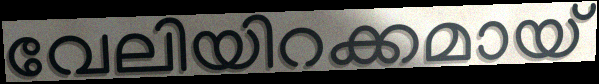
വേലിയിറക്കമായ്